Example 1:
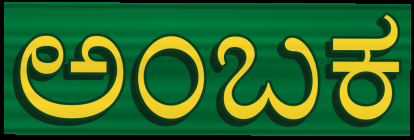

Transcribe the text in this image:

ಅಂಬಕ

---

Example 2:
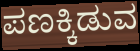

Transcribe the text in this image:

ಪಣಕ್ಕಿಡುವ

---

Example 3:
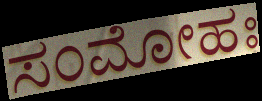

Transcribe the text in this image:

ಸಂಮೋಹಃ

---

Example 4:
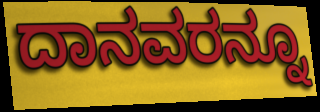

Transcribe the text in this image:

ದಾನವರನ್ನೂ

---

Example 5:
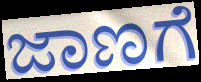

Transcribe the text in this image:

ಜಾಣಗೆ